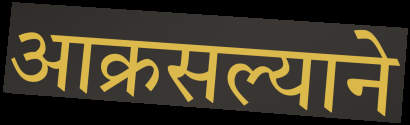
आक्रसल्याने